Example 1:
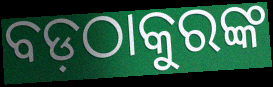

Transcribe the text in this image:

ବଡ଼ଠାକୁରଙ୍କ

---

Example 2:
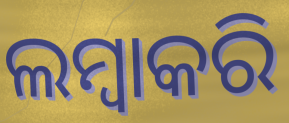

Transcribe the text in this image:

ଲମ୍ବାକରି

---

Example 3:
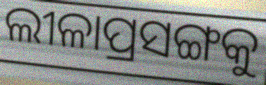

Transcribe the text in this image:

ଲୀଳାପ୍ରସଙ୍ଗକୁ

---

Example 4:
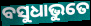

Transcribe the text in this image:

ବସୁଧାଭୁତେ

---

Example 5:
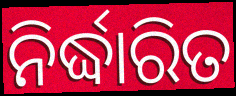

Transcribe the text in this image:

ନିର୍ଦ୍ଧାରିତ